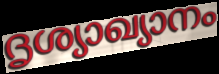
ദൃശ്യാഖ്യാനം